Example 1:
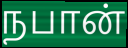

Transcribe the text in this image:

நபான்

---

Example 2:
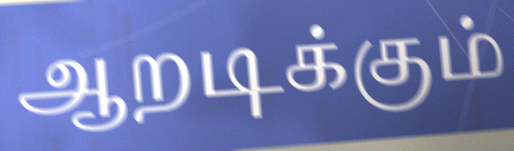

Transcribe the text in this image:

ஆறடிக்கும்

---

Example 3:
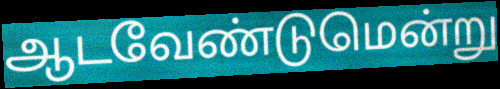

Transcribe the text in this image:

ஆடவேண்டுமென்று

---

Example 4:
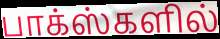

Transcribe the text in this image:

பாக்ஸ்களில்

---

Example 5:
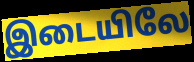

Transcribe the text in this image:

இடையிலே